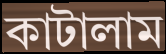
কাটালাম